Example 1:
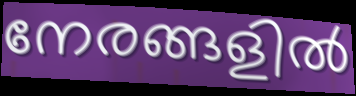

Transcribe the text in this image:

നേരങ്ങളിൽ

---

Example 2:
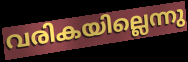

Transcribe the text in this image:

വരികയില്ലെന്നു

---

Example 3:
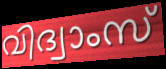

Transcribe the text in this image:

വിദ്വാംസ്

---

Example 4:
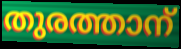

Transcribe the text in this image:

തുരത്താന്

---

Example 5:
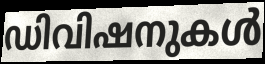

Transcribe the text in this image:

ഡിവിഷനുകൾ